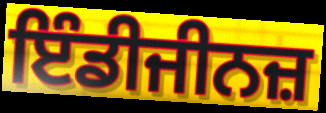
ਇੰਡੀਜੀਨਜ਼